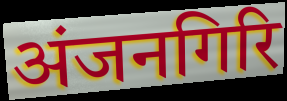
अंजनगिरि